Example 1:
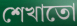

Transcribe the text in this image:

শেখাতো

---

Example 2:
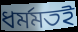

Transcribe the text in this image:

ধর্মমতই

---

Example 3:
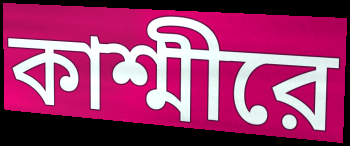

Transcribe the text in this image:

কাশ্মীরে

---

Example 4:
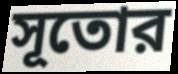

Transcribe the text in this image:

সূতোর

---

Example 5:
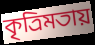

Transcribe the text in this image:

কৃত্রিমতায়